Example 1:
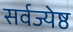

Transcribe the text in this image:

सर्वज्येष्ठ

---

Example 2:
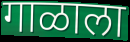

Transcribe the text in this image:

गाळाला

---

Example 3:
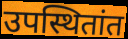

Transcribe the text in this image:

उपस्थितांत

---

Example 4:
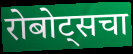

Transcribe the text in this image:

रोबोट्सचा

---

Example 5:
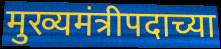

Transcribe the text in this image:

मुख्यमंत्रीपदाच्या